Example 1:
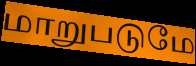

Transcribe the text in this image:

மாறுபடுமே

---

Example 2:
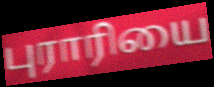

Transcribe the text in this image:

புராரியை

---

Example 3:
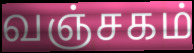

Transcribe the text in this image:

வஞ்சகம்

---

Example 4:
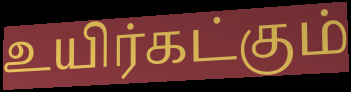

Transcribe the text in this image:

உயிர்கட்கும்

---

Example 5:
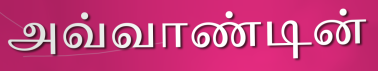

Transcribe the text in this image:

அவ்வாண்டின்